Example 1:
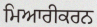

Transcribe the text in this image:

ਮਿਆਰੀਕਰਨ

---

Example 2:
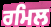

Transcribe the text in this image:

ਰਮਿਲ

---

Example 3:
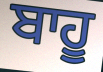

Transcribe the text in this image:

ਬਾਹੂ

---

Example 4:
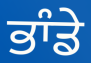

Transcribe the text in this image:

ਭਾੰਡੇ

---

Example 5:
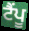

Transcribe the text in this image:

ਟੈਂਪੂ